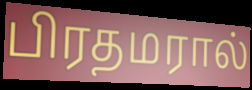
பிரதமரால்